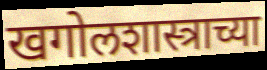
खगोलशास्त्राच्या